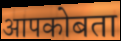
आपकोबता